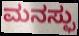
ಮನಸ್ಫು